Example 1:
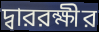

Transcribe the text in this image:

দ্বাররক্ষীর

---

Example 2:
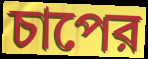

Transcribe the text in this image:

চাপের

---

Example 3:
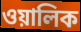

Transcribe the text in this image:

ওয়ালিক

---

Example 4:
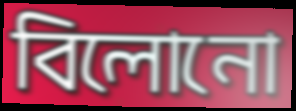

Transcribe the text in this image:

বিলোনো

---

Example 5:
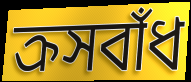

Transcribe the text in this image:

ক্রসবাঁধ